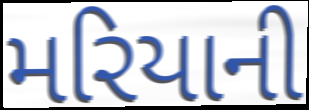
મરિયાની